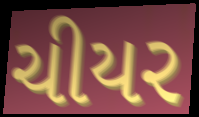
ચીયર